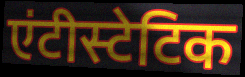
एंटीस्टेटिक